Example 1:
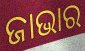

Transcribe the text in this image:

ଜାଭାର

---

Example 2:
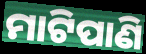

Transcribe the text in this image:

ମାଟିପାଣି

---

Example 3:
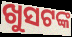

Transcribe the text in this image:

ଖୁସଟଙ୍କ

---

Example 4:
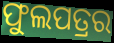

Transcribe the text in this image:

ଫୁଲପତ୍ରର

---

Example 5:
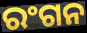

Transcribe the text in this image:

ରଂଗନ